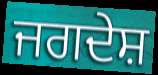
ਜਗਦੇਸ਼